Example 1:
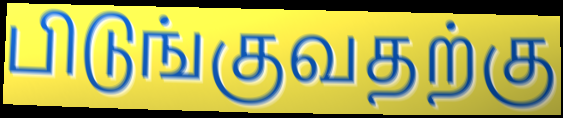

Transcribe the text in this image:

பிடுங்குவதற்கு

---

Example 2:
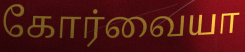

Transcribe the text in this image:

கோர்வையா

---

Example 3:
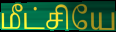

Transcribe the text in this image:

மீட்சியே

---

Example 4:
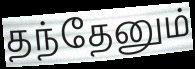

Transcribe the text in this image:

தந்தேனும்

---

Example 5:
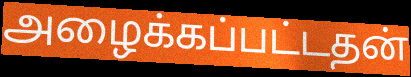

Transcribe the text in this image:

அழைக்கப்பட்டதன்